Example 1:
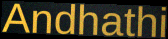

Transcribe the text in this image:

Andhathi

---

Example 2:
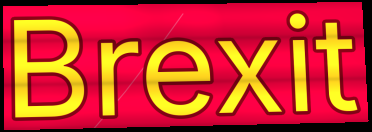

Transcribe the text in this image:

Brexit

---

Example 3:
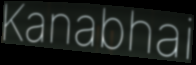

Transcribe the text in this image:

Kanabhai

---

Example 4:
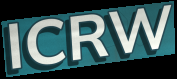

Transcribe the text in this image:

ICRW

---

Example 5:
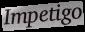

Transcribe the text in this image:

Impetigo